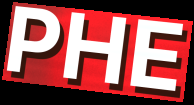
PHE